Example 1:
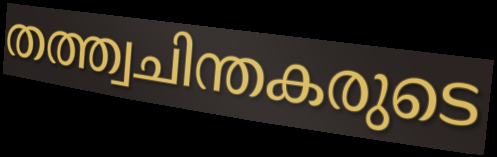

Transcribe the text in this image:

തത്ത്വചിന്തകരുടെ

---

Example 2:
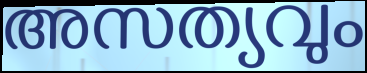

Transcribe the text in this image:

അസത്യവും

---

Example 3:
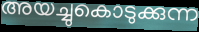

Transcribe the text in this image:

അയച്ചുകൊടുക്കുന്ന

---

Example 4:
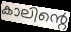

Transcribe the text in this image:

കാലിന്റെ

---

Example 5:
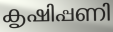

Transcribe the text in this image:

കൃഷിപ്പണി